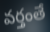
వర్తంతే